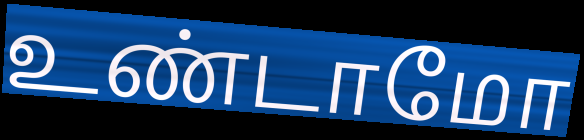
உண்டாமோ